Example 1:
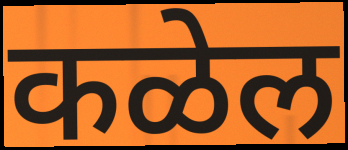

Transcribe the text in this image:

कळेल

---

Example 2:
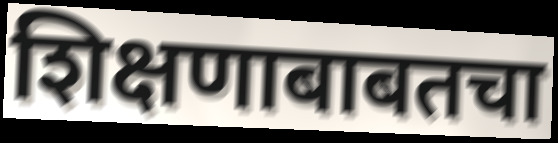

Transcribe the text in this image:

शिक्षणाबाबतचा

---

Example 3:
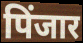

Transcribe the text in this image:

पिंजार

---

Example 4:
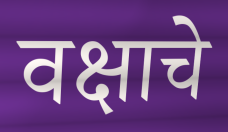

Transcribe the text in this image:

वक्षाचे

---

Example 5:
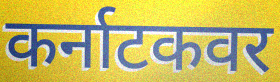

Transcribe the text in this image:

कर्नाटकवर